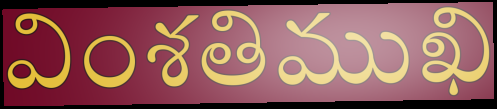
వింశతిముఖి